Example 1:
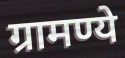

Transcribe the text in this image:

ग्रामण्ये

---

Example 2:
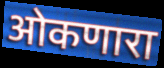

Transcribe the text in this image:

ओकणारा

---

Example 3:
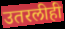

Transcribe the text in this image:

उतरलीही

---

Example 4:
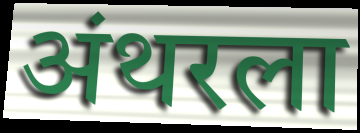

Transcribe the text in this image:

अंथरला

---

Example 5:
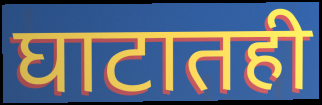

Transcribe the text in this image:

घाटातही